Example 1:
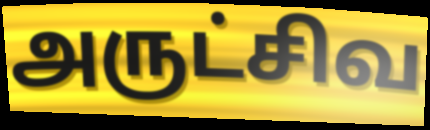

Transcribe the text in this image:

அருட்சிவ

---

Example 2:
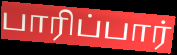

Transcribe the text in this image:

பாரிப்பார்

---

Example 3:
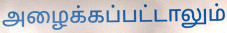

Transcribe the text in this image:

அழைக்கப்பட்டாலும்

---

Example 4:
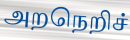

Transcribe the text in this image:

அறநெறிச்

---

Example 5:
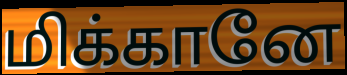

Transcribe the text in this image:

மிக்கானே